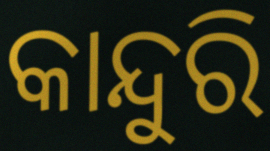
କାନ୍ଦୁରି